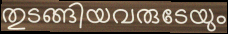
തുടങ്ങിയവരുടേയും